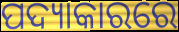
ପଦ୍ଯାକାରରେ